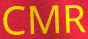
CMR